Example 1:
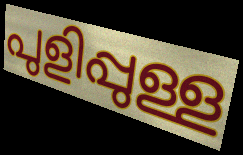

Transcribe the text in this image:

പുളിപ്പുള്ള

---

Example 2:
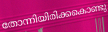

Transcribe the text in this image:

തോന്നിയിരിക്കകൊണ്ടു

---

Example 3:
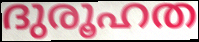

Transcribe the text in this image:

ദുരൂഹത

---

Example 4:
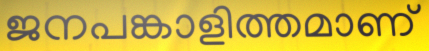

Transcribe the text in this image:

ജനപങ്കാളിത്തമാണ്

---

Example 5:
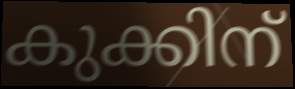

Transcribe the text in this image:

കുക്കിന്